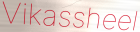
Vikassheel